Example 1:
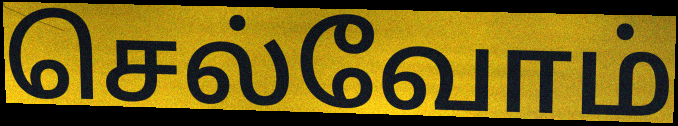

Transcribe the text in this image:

செல்வோம்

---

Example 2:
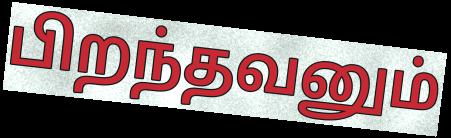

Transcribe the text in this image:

பிறந்தவனும்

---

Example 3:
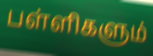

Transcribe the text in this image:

பள்ளிகளும்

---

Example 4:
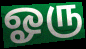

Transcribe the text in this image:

ஓரு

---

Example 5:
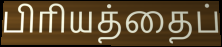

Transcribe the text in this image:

பிரியத்தைப்